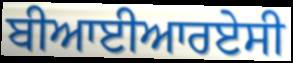
ਬੀਆਈਆਰਏਸੀ